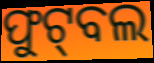
ଫୁଟ୍‌ବଲ